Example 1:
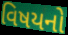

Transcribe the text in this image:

વિષયનો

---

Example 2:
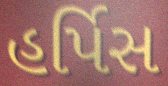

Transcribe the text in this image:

હર્પિસ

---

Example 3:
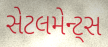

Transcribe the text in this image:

સેટલમેન્ટ્સ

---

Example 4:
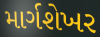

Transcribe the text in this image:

માર્ગશેખર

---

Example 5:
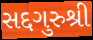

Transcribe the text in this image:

સદ્દગુરુશ્રી